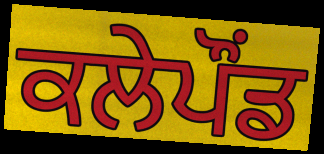
ਕਲੇਪੌਂਡ